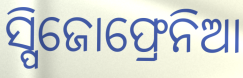
ସ୍ପିଜୋଫ୍ରେନିଆ